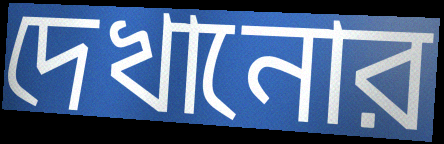
দেখানোর